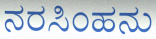
ನರಸಿಂಹನು